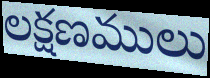
లక్షణములు